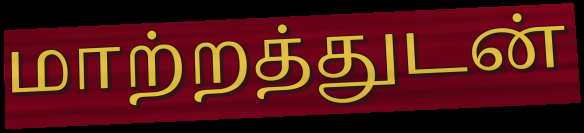
மாற்றத்துடன்